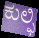
ಕುಲ್ಫಿ